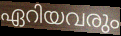
ഏറിയവരും